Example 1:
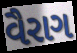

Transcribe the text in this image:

વૈરાગ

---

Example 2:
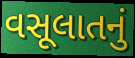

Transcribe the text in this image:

વસૂલાતનું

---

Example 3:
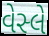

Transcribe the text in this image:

વેસ્લે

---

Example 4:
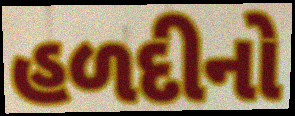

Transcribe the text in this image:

હળદીનો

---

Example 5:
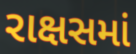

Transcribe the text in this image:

રાક્ષસમાં